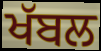
ਖੱਬਲ